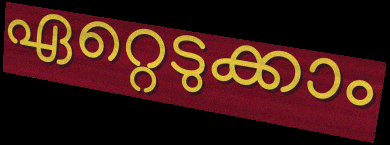
ഏറ്റെടുക്കാം